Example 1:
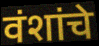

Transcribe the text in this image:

वंशांचे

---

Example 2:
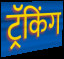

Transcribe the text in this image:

ट्रॅकिंग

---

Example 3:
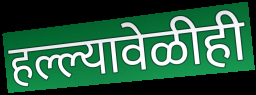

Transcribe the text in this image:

हल्ल्यावेळीही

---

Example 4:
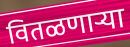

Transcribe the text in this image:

वितळणाऱ्या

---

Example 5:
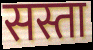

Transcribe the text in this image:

सस्ता